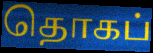
தொகப்